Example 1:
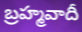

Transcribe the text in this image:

బ్రహ్మవాదీ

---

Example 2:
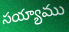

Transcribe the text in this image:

సయ్యాము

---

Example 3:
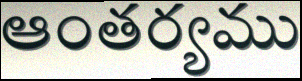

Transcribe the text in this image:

ఆంతర్యము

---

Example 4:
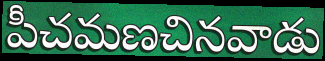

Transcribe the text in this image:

పీచమణచినవాడు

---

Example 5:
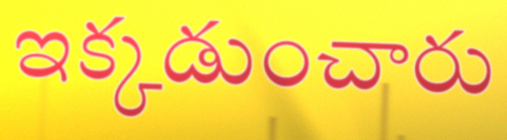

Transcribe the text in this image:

ఇక్కడుంచారు